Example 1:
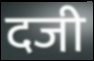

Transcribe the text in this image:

दजी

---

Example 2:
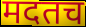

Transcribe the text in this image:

मदतच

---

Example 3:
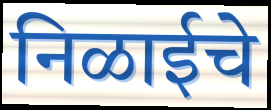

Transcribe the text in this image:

निळाईचे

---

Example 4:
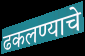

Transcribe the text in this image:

ढकलण्याचे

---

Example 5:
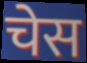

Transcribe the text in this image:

चेस